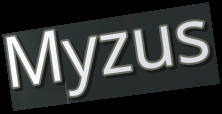
Myzus